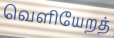
வெளியேறத்